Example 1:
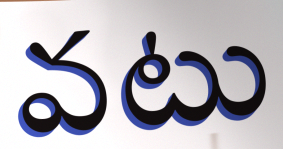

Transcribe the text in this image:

వటు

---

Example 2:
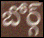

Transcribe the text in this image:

బోర్గ్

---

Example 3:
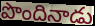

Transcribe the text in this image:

పొందినాడు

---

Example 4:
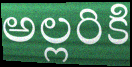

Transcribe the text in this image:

అల్లరికి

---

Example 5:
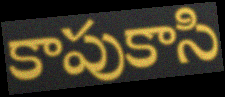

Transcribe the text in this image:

కాపుకాసి